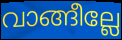
വാങ്ങീല്ലേ